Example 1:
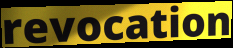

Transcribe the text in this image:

revocation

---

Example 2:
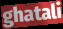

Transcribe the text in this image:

ghatali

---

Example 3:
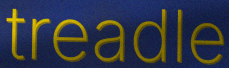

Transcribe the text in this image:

treadle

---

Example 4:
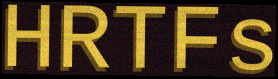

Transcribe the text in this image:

HRTFs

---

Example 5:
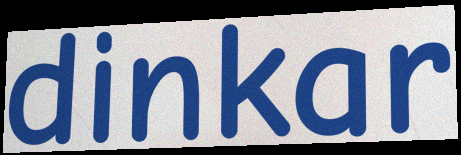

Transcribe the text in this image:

dinkar